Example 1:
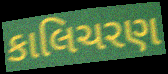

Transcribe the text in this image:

કાલિચરણ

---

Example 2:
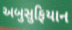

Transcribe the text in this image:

અબુસુફિયાન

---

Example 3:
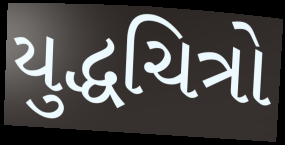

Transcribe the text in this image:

યુદ્ધચિત્રો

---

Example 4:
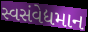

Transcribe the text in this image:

સ્વસંવેદ્યમાન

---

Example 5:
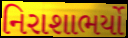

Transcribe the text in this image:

નિરાશાભર્યો